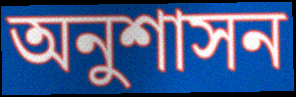
অনুশাসন